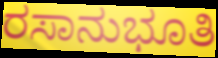
ರಸಾನುಭೂತಿ